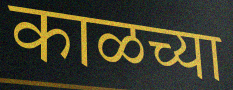
काळच्या